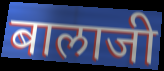
बालाजी